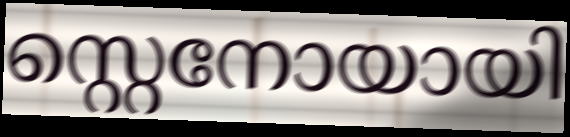
സ്റ്റെനോയായി